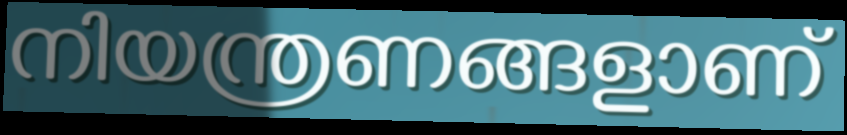
നിയന്ത്രണങ്ങളാണ്